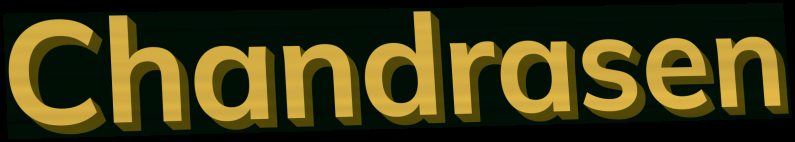
Chandrasen